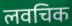
लवचिक